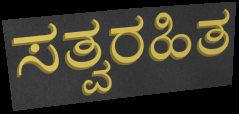
ಸತ್ವರಹಿತ